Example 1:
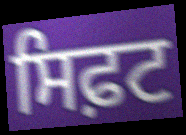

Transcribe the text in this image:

ਸਿਫ਼ਟ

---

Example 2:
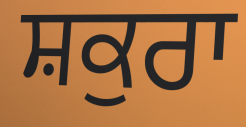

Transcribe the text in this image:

ਸ਼ਕੁਰਾ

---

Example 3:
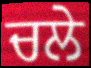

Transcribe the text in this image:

ਚਲੇ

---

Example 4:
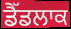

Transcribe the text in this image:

ਡੈੱਡਲਾਕ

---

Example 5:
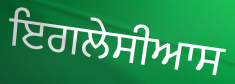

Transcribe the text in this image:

ਇਗਲੇਸੀਆਸ